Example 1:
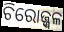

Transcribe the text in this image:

ଚିରୋଜ୍ଜ୍ଵଳ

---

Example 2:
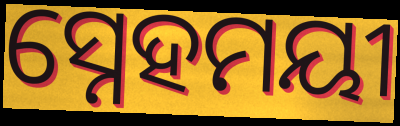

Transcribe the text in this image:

ସ୍ନେହମୟୀ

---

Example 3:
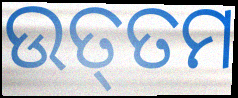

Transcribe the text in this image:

ଉତ୍‌ତମ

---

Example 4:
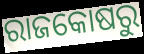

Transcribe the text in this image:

ରାଜକୋଷରୁ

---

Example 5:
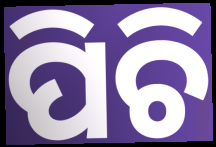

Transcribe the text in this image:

ପିଚି